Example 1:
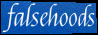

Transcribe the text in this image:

falsehoods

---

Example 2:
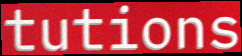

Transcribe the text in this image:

tutions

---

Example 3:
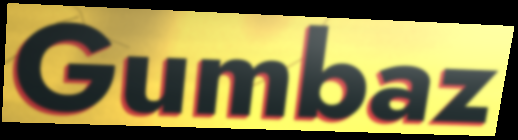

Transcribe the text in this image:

Gumbaz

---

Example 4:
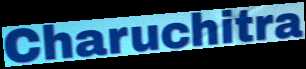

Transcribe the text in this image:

Charuchitra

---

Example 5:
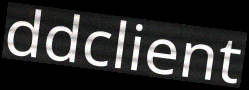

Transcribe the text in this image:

ddclient